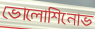
ভোলোশিনোভ